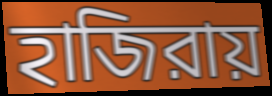
হাজিরায়